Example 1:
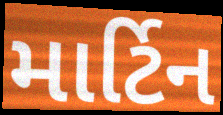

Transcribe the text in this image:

માર્ટિન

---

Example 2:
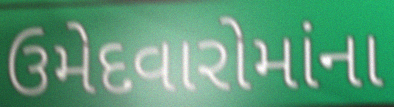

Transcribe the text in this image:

ઉમેદવારોમાંના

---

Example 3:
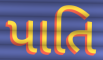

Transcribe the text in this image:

પાતિ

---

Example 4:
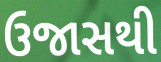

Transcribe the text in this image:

ઉજાસથી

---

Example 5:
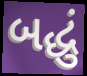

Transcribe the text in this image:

બદ્ધું